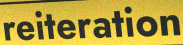
reiteration